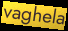
vaghela